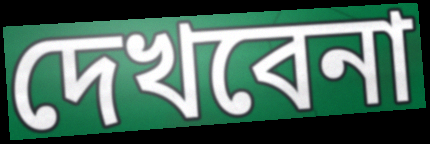
দেখবেনা